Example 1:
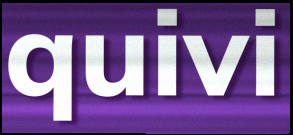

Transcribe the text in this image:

quivi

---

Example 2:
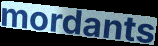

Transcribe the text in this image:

mordants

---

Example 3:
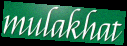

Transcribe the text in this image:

mulakhat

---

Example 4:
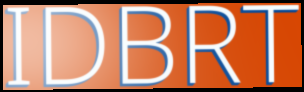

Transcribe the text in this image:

IDBRT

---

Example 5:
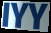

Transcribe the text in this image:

IYY